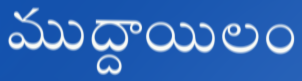
ముద్దాయిలం